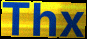
Thx